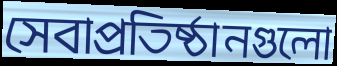
সেবাপ্রতিষ্ঠানগুলো